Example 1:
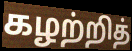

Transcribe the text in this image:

கழற்றித்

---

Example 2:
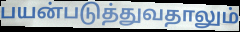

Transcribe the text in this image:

பயன்படுத்துவதாலும்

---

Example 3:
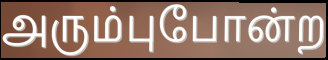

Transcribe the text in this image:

அரும்புபோன்ற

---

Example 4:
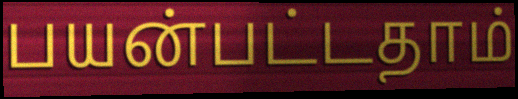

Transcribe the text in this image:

பயன்பட்டதாம்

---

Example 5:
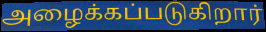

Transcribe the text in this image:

அழைக்கப்படுகிறார்